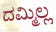
ದಮ್ಮಿಲ್ಲ